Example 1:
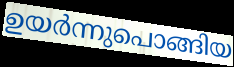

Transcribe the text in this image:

ഉയർന്നുപൊങ്ങിയ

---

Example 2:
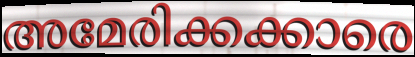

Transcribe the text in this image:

അമേരിക്കക്കാരെ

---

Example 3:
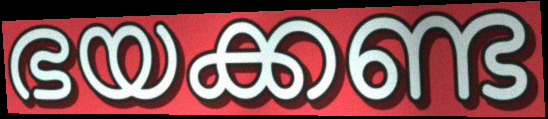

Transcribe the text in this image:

ഭയക്കണ്ട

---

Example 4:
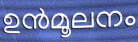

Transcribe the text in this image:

ഉൻമൂലനം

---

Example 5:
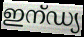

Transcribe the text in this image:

ഇന്ഡ്യ